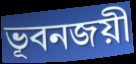
ভূবনজয়ী